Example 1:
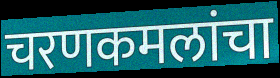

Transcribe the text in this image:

चरणकमलांचा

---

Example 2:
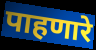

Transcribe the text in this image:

पाहणारे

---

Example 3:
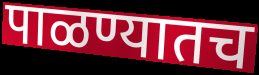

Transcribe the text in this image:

पाळण्यातच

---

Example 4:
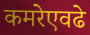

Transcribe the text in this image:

कमरेएवढे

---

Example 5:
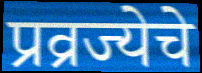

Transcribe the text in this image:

प्रव्रज्येचे